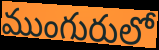
ముంగురులో